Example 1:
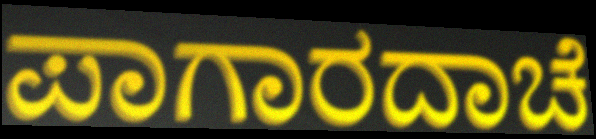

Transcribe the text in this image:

ಪಾಗಾರದಾಚೆ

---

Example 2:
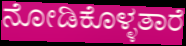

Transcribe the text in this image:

ನೋಡಿಕೊಳ್ಳತಾರೆ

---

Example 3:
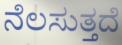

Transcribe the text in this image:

ನೆಲಸುತ್ತದೆ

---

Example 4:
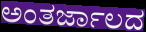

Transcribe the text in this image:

ಅಂತರ್ಜಾಲದ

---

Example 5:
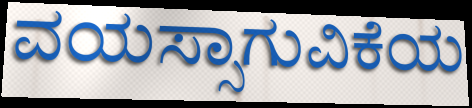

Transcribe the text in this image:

ವಯಸ್ಸಾಗುವಿಕೆಯ